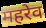
महरेव